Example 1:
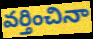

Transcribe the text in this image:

వర్తించినా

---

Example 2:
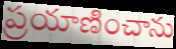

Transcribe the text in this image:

ప్రయాణించాను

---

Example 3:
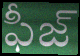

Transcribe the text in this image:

ఫీజ్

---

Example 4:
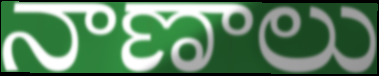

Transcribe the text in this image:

నాణాలు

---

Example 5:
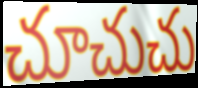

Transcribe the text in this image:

చూచుచు